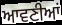
ਆਵਣੀਆਂ